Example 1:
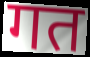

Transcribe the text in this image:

गत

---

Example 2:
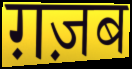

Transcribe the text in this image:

ग़ज़ब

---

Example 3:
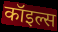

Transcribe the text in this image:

कॉइल्स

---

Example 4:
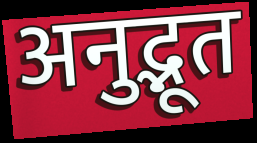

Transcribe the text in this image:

अनुद्भूत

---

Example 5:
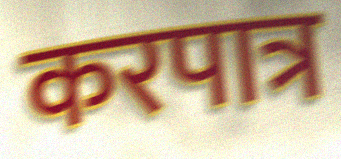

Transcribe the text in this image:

करपात्र